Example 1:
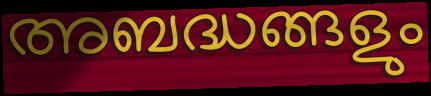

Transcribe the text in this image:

അബദ്ധങ്ങളും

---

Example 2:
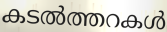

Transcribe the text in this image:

കടൽത്തറകൾ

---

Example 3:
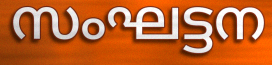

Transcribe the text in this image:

സംഘട്ടന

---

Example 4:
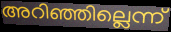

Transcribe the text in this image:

അറിഞ്ഞില്ലെന്ന്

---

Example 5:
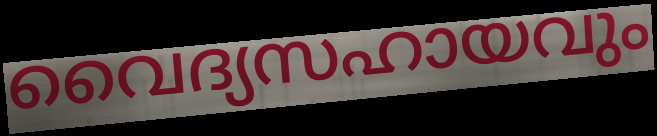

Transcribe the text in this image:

വൈദ്യസഹായവും